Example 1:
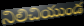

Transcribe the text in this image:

నిలిచియుండ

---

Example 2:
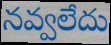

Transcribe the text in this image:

నవ్వలేదు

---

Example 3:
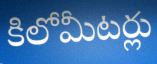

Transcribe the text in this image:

కిలోమీటర్లు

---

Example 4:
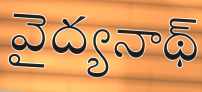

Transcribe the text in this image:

వైద్యనాథ్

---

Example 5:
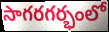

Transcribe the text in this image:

సాగరగర్భంలో